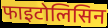
फाइटोलिसिन